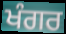
ਖੰਗਰ